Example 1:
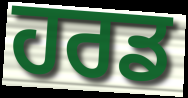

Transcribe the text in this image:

ਹਰਡ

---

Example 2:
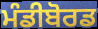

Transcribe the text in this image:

ਮੰਡੀਬੋਰਡ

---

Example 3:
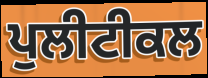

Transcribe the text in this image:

ਪੁਲੀਟੀਕਲ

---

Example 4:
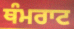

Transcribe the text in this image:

ਥੰਮਰਾਟ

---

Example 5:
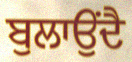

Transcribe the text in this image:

ਬੁਲਾਉਂਦੈ